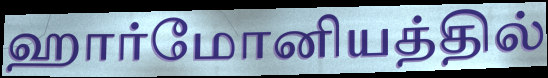
ஹார்மோனியத்தில்